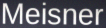
Meisner